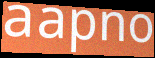
aapno